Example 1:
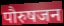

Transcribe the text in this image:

पौरुषजन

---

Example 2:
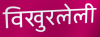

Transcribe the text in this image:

विखुरलेली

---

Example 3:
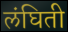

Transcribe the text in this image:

लंघिती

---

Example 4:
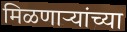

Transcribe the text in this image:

मिळणाऱ्यांच्या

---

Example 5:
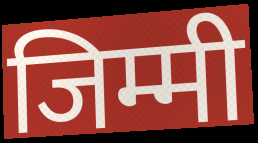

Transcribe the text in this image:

जिम्मी